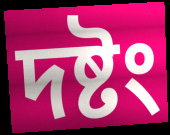
দষ্টং